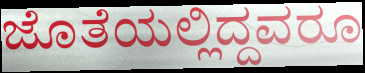
ಜೊತೆಯಲ್ಲಿದ್ದವರೂ